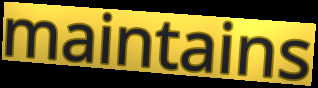
maintains